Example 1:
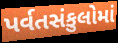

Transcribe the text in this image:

પર્વતસંકુલોમાં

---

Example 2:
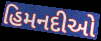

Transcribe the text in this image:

હિમનદીઓ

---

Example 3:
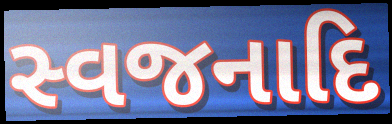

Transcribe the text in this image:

સ્વજનાદિ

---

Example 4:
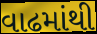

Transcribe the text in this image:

વાઢમાંથી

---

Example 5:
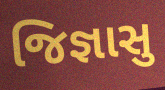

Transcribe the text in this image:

જિજ્ઞાસુ